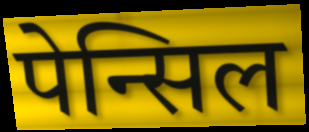
पेन्सिल